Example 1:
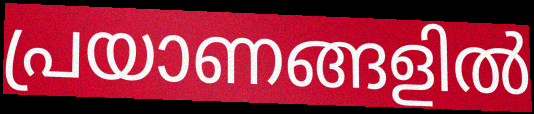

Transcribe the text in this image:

പ്രയാണങ്ങളിൽ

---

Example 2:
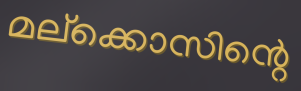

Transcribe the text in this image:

മല്ക്കൊസിന്റെ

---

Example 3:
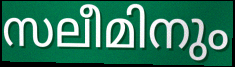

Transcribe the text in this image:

സലീമിനും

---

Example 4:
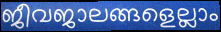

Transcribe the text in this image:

ജീവജാലങ്ങളെല്ലാം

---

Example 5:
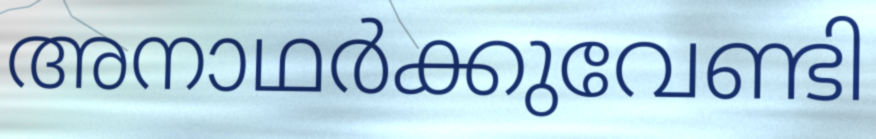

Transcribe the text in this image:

അനാഥർക്കുവേണ്ടി